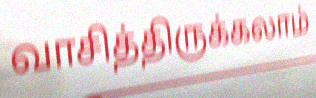
வாசித்திருக்கலாம்